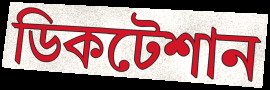
ডিকটেশান